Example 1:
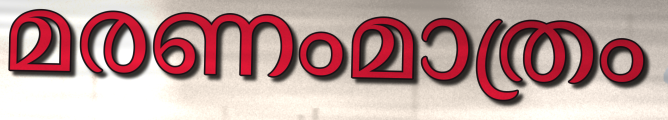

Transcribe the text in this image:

മരണംമാത്രം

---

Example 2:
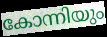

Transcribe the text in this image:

കോന്നിയും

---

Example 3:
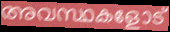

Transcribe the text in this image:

അവസ്ഥകളോട്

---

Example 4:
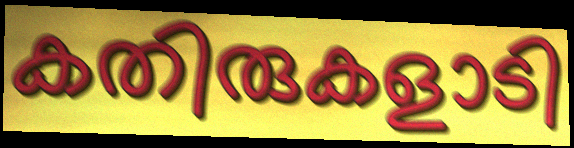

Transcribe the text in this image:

കതിരുകളാടി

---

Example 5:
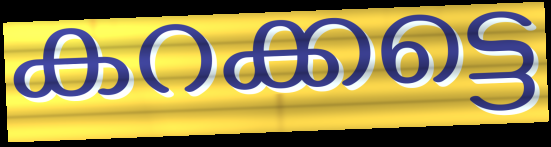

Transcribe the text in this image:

കറക്കട്ടെ